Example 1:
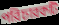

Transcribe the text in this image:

পরিচারকটি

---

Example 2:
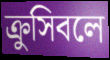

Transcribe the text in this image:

ক্রুসিবলে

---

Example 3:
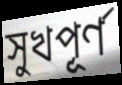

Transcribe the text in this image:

সুখপূর্ণ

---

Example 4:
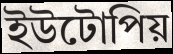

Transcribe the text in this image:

ইউটোপিয়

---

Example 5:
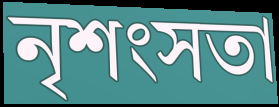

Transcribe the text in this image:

নৃশংসতা